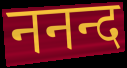
ननन्द